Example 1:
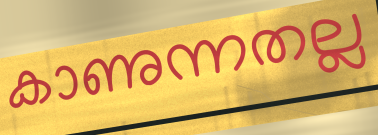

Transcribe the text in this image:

കാണുന്നതല്ല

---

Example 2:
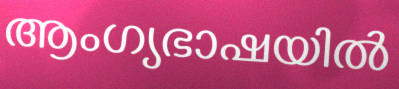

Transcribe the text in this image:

ആംഗ്യഭാഷയിൽ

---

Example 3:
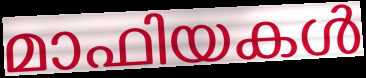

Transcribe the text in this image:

മാഫിയകൾ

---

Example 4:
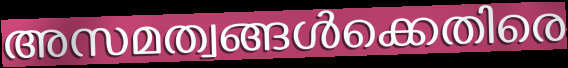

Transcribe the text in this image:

അസമത്വങ്ങൾക്കെതിരെ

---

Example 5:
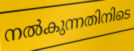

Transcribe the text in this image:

നൽകുന്നതിനിടെ